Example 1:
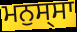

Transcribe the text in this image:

ਮਨੁਸ੍ਸਾ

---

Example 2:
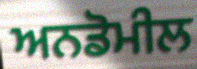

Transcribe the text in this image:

ਅਨਡੋਮੀਲ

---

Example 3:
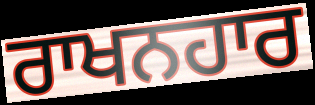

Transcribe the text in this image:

ਰਾਖਨਹਾਰ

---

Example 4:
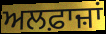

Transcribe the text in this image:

ਅਲਫ਼ਾਜ਼ਾਂ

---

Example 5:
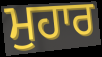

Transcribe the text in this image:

ਮੁਹਾਰ